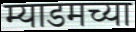
म्याडमच्या